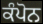
ਕੰਪੋਨ